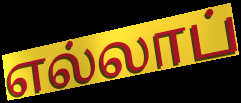
எல்லாப்